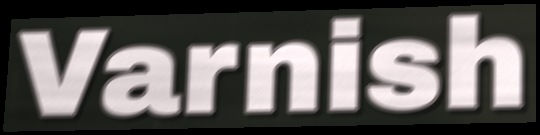
Varnish